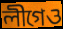
লীগেও